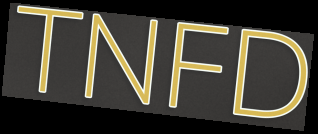
TNFD